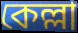
কেল্লা